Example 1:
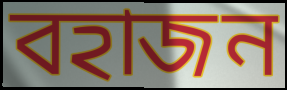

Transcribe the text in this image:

বহাজন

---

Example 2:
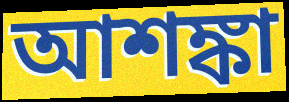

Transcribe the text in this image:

আশঙ্কা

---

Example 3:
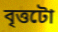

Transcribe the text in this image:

বৃত্তটো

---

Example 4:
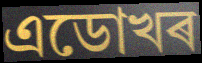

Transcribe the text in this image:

এডোখৰ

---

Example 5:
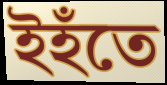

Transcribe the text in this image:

ইহঁতে